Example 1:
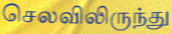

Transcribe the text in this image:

செலவிலிருந்து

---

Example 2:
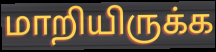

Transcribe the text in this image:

மாறியிருக்க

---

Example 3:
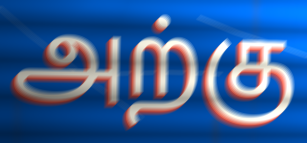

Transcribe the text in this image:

அற்கு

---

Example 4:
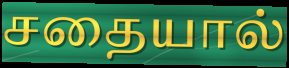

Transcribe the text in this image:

சதையால்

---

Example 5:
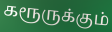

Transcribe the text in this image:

கரூருக்கும்